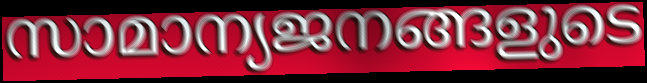
സാമാന്യജനങ്ങളുടെ